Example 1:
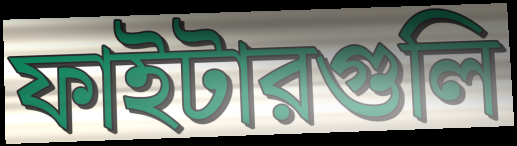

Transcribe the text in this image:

ফাইটারগুলি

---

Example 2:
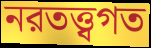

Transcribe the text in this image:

নরতত্ত্বগত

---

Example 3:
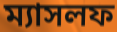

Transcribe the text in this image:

ম্যাসলফ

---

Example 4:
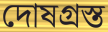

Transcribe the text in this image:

দোষগ্রস্ত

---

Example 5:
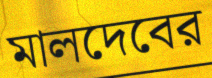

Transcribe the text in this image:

মালদেবের